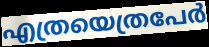
എത്രയെത്രപേർ